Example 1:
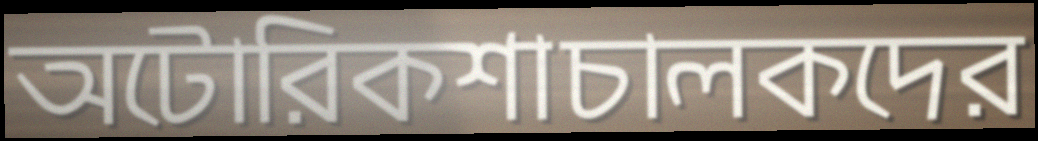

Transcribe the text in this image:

অটোরিকশাচালকদের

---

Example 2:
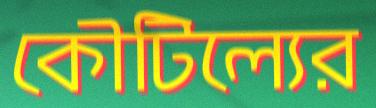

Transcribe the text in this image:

কৌটিল্যের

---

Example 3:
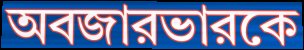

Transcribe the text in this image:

অবজারভারকে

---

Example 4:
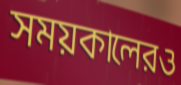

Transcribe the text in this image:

সময়কালেরও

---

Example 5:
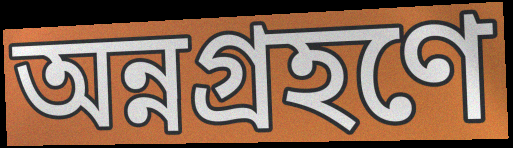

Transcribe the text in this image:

অন্নগ্রহণে